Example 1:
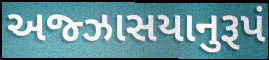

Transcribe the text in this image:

અજ્ઝાસયાનુરૂપં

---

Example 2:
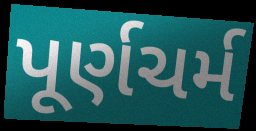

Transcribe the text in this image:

પૂર્ણચર્મ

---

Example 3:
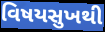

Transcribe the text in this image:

વિષયસુખથી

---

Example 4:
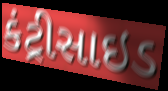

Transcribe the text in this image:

કંટ્રીસાઇડ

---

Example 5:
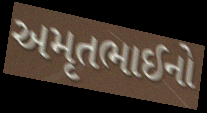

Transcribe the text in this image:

અમૃતભાઈનો